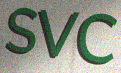
SVC